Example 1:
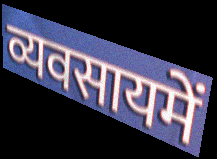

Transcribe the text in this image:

व्यवसायमें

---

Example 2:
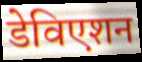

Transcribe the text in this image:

डेविएशन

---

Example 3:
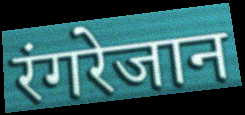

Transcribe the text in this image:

रंगरेजान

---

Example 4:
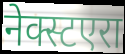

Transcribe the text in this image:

नेक्स्टएरा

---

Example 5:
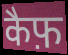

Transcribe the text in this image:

कैफ़